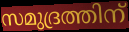
സമുദ്രത്തിന്